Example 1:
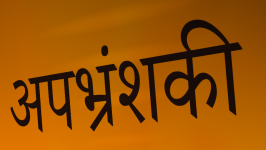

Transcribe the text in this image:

अपभ्रंशकी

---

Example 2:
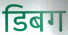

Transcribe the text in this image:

डिबग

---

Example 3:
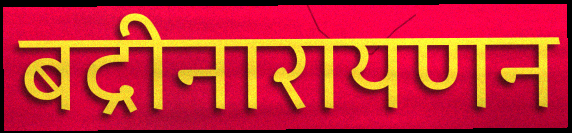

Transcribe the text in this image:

बद्रीनारायणन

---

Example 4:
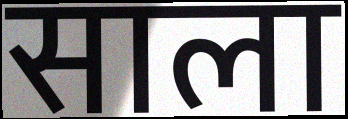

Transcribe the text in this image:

साला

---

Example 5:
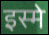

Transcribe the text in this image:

इस्मे